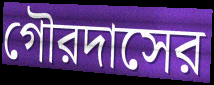
গৌরদাসের